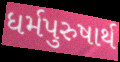
ધર્મપુરુષાર્થ